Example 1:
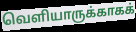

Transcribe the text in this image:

வெளியாருக்காகக்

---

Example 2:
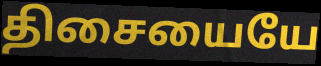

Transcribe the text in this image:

திசையையே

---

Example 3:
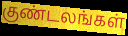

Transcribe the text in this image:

குண்டலங்கள்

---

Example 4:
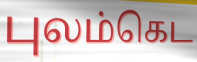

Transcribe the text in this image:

புலம்கெட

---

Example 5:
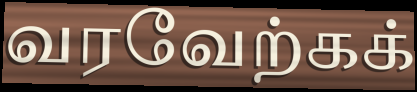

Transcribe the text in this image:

வரவேற்கக்